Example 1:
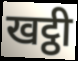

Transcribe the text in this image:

खट्ठी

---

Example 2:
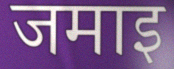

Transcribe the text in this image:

जमाइ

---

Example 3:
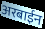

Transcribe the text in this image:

अरबाईन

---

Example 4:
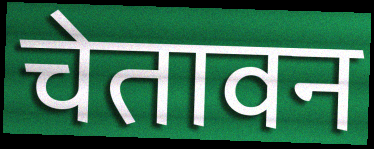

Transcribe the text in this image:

चेतावन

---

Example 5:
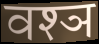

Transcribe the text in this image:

वश्ञ